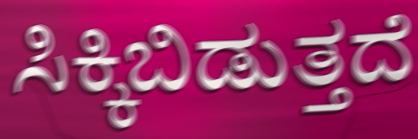
ಸಿಕ್ಕಿಬಿಡುತ್ತದೆ